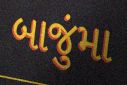
બાજુંમા